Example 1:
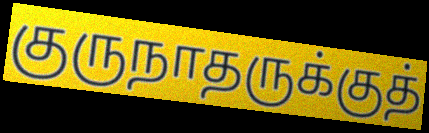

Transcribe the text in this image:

குருநாதருக்குத்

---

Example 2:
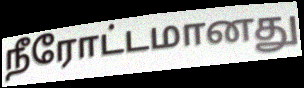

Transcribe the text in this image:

நீரோட்டமானது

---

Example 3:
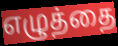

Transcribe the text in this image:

எழுத்தை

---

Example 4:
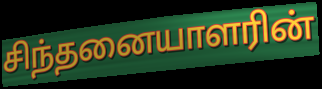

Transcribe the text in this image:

சிந்தனையாளரின்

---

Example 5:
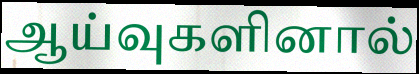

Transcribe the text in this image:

ஆய்வுகளினால்